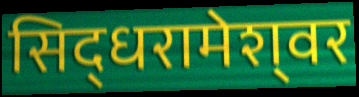
सिद्धरामेश्वर